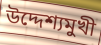
উদ্দেশ্যমুখী